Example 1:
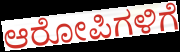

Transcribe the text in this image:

ಆರೋಪಿಗಳಿಗೆ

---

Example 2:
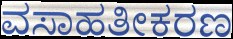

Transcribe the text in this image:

ವಸಾಹತೀಕರಣ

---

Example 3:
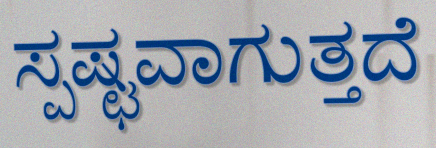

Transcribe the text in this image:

ಸ್ಪಷ್ಟವಾಗುತ್ತದೆ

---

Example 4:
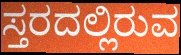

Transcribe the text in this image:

ಸ್ತರದಲ್ಲಿರುವ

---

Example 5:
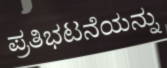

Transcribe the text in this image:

ಪ್ರತಿಭಟನೆಯನ್ನು